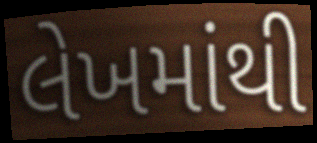
લેખમાંથી